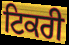
ਟਿਕਰੀ